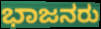
ಭಾಜನರು